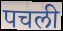
पचली